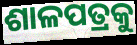
ଶାଳପତ୍ରକୁ